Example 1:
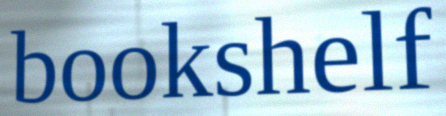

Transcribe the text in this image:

bookshelf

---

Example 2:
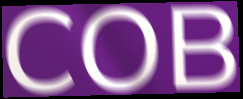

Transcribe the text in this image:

COB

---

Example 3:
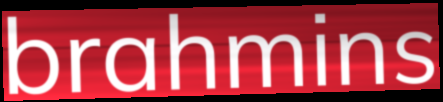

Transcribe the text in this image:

brahmins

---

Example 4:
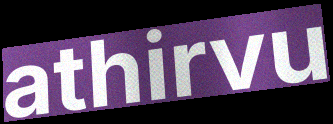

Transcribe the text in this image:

athirvu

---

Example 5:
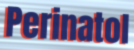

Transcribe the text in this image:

Perinatol